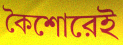
কৈশোরেই